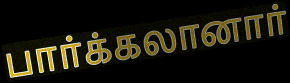
பார்க்கலானார்